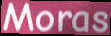
Moras